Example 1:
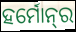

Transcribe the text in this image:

ହର୍ମୋନ୍‌ର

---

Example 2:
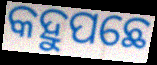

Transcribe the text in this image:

କହୁପଛେ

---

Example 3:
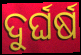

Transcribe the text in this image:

ଦୁର୍ଘର୍ଷ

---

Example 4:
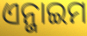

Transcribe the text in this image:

ଏନ୍ଜାଇମ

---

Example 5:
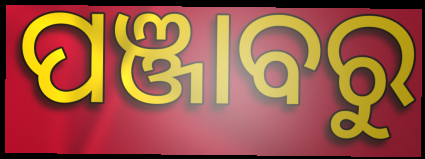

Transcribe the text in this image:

ପଞ୍ଜାବରୁ